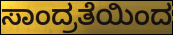
ಸಾಂದ್ರತೆಯಿಂದ